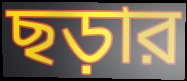
ছড়ার